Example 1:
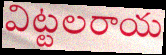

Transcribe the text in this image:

విట్టలరాయ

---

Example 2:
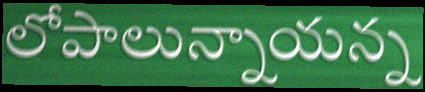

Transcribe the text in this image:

లోపాలున్నాయన్న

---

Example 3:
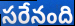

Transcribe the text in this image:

సరేనంది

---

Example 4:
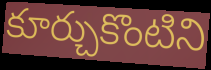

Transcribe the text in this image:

కూర్చుకొంటిని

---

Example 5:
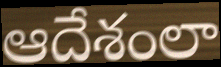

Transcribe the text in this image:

ఆదేశంలా